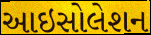
આઇસોલેશન